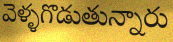
వెళ్ళగొడుతున్నారు